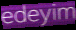
edeyim